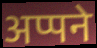
अप्पने